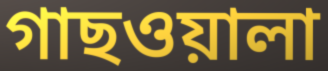
গাছওয়ালা